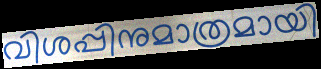
വിശപ്പിനുമാത്രമായി